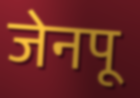
जेनपू